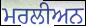
ਮਰਲੀਅਨ